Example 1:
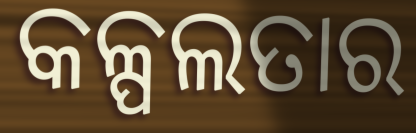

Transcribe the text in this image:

କଳ୍ପଲତାର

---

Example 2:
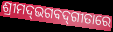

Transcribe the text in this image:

ଶ୍ରୀମଦ୍‌ଭଗବଦ୍‌ଗୀତାରେ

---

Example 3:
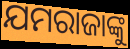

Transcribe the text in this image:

ଯମରାଜାଙ୍କୁ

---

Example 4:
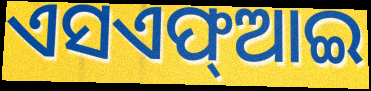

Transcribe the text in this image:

ଏସଏଫ୍ଆଇ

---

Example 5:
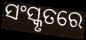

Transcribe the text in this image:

ସଂସ୍କୃତରେ